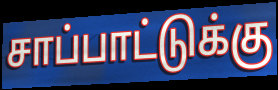
சாப்பாட்டுக்கு